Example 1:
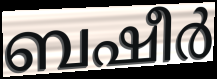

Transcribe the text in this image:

ബഷീർ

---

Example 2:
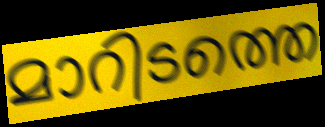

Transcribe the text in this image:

മാറിടത്തെ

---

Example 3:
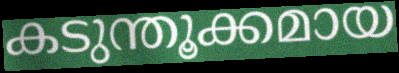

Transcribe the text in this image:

കടുന്തൂക്കമായ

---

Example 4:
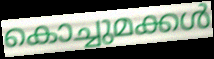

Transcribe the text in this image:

കൊച്ചുമക്കൾ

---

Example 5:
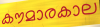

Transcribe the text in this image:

കൗമാരകാല